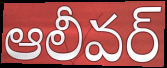
ఆలీవర్